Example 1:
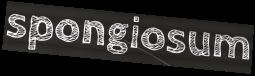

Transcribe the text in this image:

spongiosum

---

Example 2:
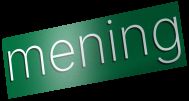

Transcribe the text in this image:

mening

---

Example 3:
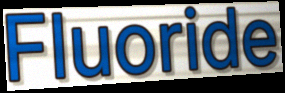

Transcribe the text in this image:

Fluoride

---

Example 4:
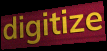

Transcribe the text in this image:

digitize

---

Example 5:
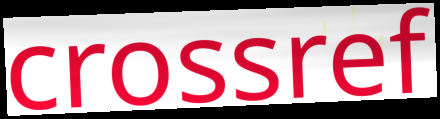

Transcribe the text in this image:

crossref